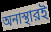
অনাস্থারই